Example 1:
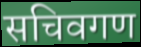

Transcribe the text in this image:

सचिवगण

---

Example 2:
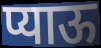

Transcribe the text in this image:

प्याऊ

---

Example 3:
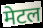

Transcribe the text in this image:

मेटल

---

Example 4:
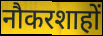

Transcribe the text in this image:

नौकरशाहों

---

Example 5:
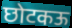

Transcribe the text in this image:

छोटकऊ